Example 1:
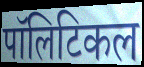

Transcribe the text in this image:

पॉलिटिकल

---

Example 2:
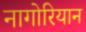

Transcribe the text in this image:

नागोरियान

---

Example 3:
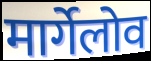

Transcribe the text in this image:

मार्गेलोव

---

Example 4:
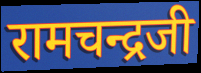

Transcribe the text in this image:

रामचन्द्रजी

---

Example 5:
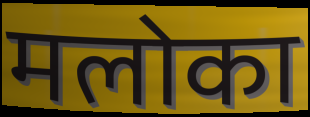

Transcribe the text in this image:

मलोका